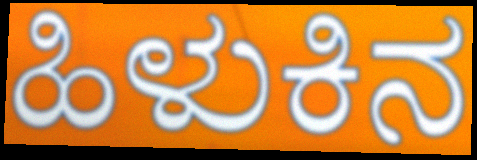
ಹಿಳುಕಿನ